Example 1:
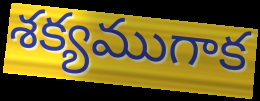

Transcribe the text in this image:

శక్యముగాక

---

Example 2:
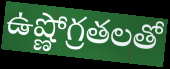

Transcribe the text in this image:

ఉష్ణోగ్రతలతో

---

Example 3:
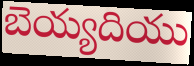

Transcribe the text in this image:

బెయ్యదియు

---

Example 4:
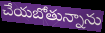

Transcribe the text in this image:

చేయబోతున్నాను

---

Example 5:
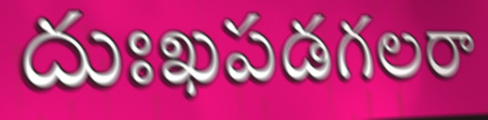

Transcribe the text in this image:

దుఃఖపడగలరా